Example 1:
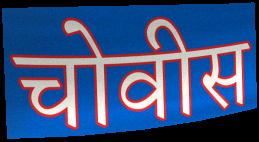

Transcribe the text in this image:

चोवीस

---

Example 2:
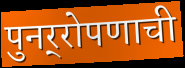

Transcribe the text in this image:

पुनर्रोपणाची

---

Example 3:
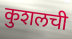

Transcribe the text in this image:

कुशलची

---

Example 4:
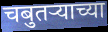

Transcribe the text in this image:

चबुतर्‍याच्या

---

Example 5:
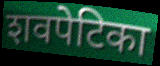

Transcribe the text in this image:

शवपेटिका